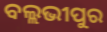
ବଲ୍ଲଭୀପୁର